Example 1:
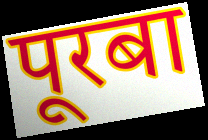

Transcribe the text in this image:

पूरबा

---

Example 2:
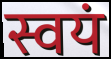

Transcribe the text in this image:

स्‍वयं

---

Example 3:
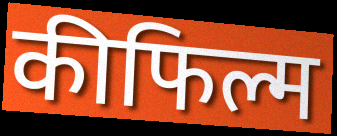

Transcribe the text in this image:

कीफिल्म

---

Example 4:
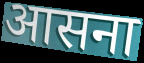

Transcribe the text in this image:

आसना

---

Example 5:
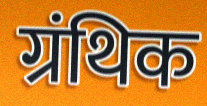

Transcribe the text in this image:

ग्रंथिक